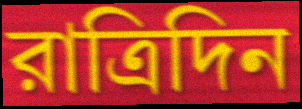
রাত্রিদিন